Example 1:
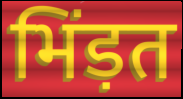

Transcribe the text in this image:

भिंड़त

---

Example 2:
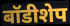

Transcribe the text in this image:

बॉडीशेप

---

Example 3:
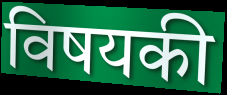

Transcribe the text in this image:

विषयकी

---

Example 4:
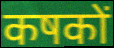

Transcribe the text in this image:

कषकों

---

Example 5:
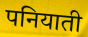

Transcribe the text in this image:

पनियाती